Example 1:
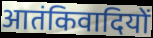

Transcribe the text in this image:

आतंकिवादियों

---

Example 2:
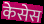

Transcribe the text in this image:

केसेस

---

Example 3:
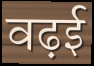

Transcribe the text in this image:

वढ़ई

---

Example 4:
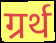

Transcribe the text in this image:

ग्रर्थ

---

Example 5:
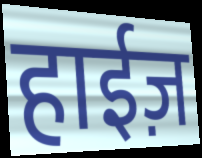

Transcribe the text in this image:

हाईज़